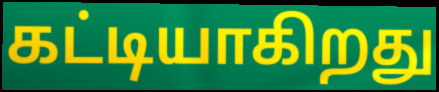
கட்டியாகிறது